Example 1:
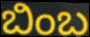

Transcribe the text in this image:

ಬಿಂಬ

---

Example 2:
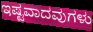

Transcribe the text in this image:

ಇಷ್ಟವಾದವುಗಳು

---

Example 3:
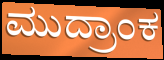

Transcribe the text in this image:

ಮುದ್ರಾಂಕ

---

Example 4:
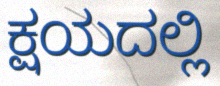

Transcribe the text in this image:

ಕ್ಷಯದಲ್ಲಿ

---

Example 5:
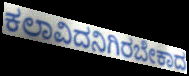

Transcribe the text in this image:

ಕಲಾವಿದನಿಗಿರಬೇಕಾದ